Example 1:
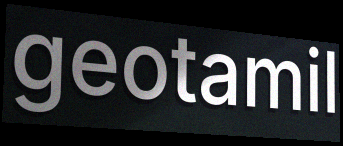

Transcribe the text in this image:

geotamil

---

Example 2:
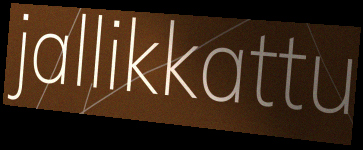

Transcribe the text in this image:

jallikkattu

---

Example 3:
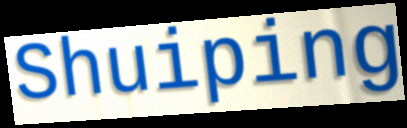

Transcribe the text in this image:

Shuiping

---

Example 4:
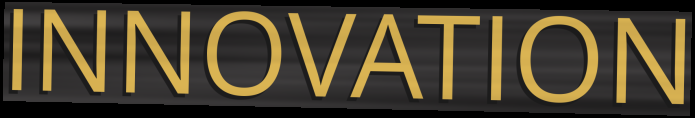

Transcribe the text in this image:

INNOVATION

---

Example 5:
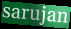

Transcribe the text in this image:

sarujan